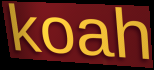
koah